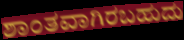
ಶಾಂತವಾಗಿರಬಹುದು